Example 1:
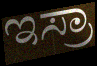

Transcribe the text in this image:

ಇಸ್ರಾ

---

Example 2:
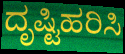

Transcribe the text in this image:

ದೃಷ್ಟಿಹರಿಸಿ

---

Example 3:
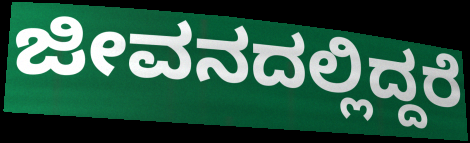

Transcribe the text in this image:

ಜೀವನದಲ್ಲಿದ್ದರೆ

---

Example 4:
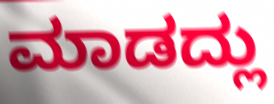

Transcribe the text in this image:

ಮಾಡದ್ಲು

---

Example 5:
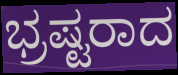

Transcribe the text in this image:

ಭ್ರಷ್ಟರಾದ